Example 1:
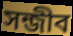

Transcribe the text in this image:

সন্জীব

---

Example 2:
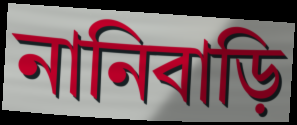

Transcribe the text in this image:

নানিবাড়ি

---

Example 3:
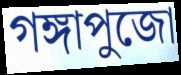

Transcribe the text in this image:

গঙ্গাপুজো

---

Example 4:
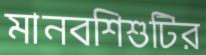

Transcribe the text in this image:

মানবশিশুটির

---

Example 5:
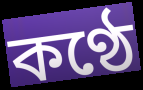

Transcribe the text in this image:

কণ্ঠে